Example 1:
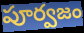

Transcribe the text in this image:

పూర్వజం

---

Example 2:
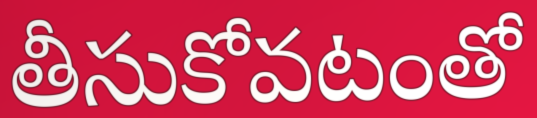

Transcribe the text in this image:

తీసుకోవటంతో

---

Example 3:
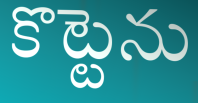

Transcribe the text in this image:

కొట్టెను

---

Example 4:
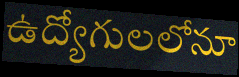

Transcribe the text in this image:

ఉద్యోగులలోనూ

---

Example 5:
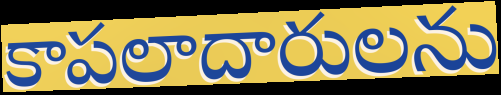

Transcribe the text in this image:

కాపలాదారులను